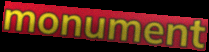
monument